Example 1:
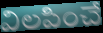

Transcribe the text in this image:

విలపించే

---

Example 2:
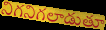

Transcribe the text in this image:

నిగనిగలాడుతూ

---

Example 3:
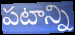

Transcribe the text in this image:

పటాన్ని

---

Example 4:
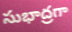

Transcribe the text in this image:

సుభాద్రగా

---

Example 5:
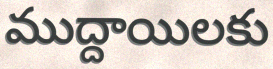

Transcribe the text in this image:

ముద్దాయిలకు